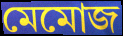
মেমোজ